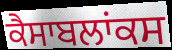
ਕੈਸਾਬਲਾਂਕਸ